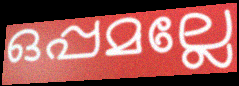
ഒപ്പമല്ലേ